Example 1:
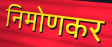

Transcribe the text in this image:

निमोणकर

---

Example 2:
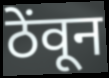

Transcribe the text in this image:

ठेंवून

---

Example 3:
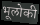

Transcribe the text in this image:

भूलोकी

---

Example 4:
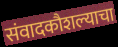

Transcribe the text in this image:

संवादकौशल्याचा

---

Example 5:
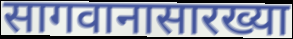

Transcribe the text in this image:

सागवानासारख्या